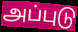
அப்புடு